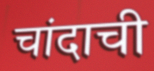
चांदाची